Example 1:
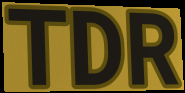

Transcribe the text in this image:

TDR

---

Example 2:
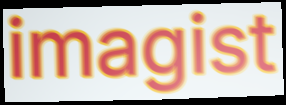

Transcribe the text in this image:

imagist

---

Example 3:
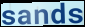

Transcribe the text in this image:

sands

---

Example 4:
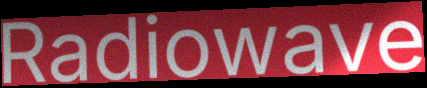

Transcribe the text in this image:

Radiowave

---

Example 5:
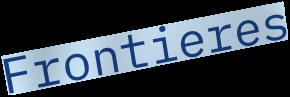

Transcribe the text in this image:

Frontieres